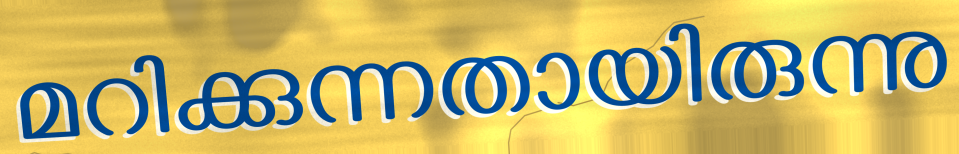
മറിക്കുന്നതായിരുന്നു